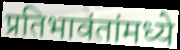
प्रतिभावंतांमध्ये